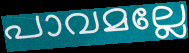
പാവമല്ലേ